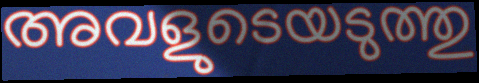
അവളുടെയടുത്തു